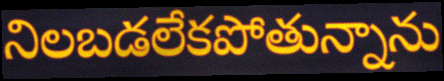
నిలబడలేకపోతున్నాను